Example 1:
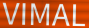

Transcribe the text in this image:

VIMAL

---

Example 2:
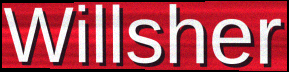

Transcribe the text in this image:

Willsher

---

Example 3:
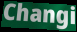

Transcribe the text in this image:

Changi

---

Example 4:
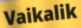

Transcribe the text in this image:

Vaikalik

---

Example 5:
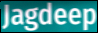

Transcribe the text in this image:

Jagdeep